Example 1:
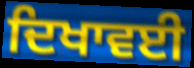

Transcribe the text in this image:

ਦਿਖਾਵਈ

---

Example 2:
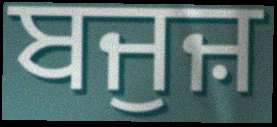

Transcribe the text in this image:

ਬਜੁਜ਼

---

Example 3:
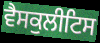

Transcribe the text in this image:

ਵੈਸਕੁਲੀਟਿਸ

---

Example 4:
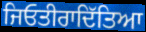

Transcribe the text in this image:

ਜਿਓਤੀਰਾਦਿੱਤਿਆ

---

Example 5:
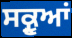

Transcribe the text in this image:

ਸਕ੍ਰੂਆਂ